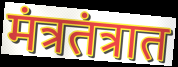
मंत्रतंत्रात